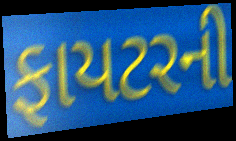
ફાયટરની